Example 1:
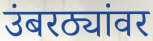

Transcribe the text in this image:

उंबरठ्यांवर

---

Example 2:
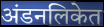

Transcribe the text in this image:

अंडनलिकेत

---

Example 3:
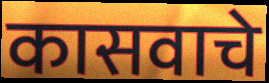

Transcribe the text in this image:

कासवाचे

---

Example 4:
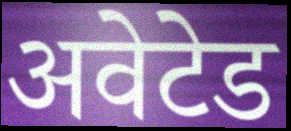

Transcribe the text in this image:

अवेटेड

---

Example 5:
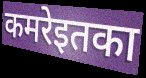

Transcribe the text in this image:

कमरेइतका